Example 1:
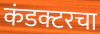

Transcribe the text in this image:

कंडक्टरचा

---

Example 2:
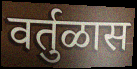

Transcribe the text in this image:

वर्तुळास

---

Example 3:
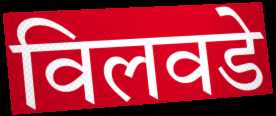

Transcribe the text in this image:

विलवडे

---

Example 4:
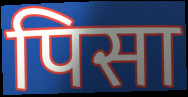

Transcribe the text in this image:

पिसा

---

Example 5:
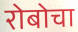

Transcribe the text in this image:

रोबोचा